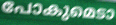
പോകുമെടാ